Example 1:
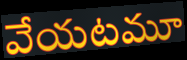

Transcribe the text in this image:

వేయటమూ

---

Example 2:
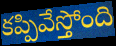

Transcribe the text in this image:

కప్పివేస్తోంది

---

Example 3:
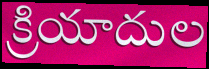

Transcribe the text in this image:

క్రియాదుల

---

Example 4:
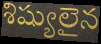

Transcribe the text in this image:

శిష్యులైన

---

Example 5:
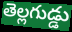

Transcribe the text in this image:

తెల్లగుడ్డు